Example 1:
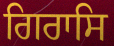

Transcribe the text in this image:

ਗਿਰਾਸਿ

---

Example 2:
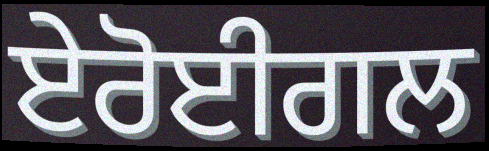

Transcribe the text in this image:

ਏਰੋਈਗਲ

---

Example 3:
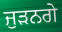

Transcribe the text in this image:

ਜੁਡ਼ਨਗੇ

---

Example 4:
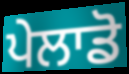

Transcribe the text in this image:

ਪੇਲਾਡੋ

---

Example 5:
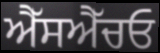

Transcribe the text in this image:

ਐੱਸਐੱਚਓ